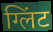
ग्लिंट